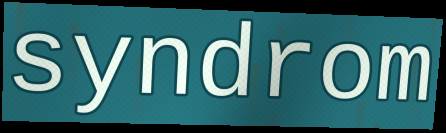
syndrom